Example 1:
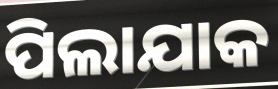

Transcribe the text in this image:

ପିଲାଯାକ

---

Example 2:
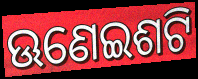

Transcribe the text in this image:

ଊଣେଇଶଟି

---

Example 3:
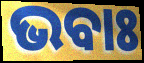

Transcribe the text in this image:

ଭବାଃ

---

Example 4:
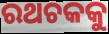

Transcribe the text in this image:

ରଥଚକକୁ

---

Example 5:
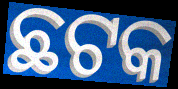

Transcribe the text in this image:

ଛଟକ